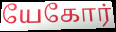
யேகோர்